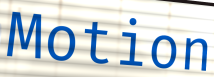
Motion